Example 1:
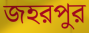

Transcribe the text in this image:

জহরপুর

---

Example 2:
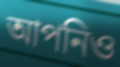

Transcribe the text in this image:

আপনিও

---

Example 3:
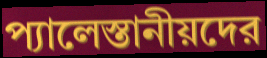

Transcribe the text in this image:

প্যালেস্তানীয়দের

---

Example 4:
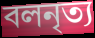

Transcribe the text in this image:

বলনৃত্য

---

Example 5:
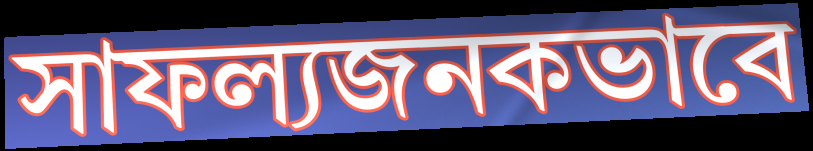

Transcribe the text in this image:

সাফল্যজনকভাবে